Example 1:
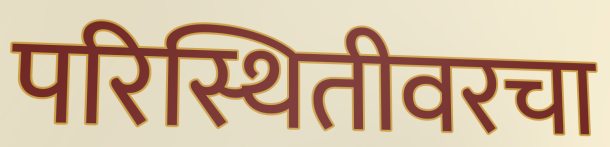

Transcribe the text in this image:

परिस्थितीवरचा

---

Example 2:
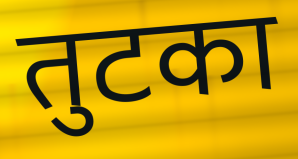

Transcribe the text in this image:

तुटका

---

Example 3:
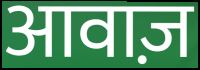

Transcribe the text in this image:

आवाज़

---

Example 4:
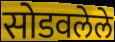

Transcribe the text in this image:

सोडवलेले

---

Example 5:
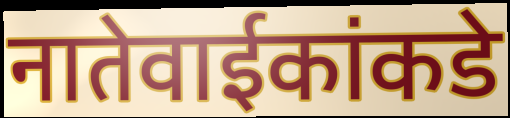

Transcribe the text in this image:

नातेवाईकांकडे